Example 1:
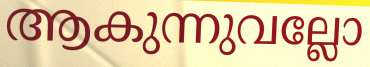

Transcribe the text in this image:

ആകുന്നുവല്ലോ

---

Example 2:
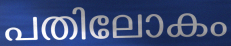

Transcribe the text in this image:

പതിലോകം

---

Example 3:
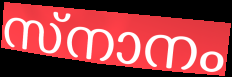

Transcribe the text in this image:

സ്‌നാനം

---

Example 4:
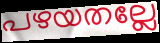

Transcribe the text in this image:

പഴയതല്ലേ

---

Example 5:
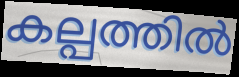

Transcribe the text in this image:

കല്പത്തിൽ